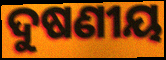
ଦୁଷଣୀୟ